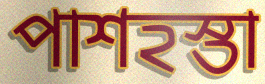
পাশহস্তা